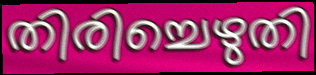
തിരിച്ചെഴുതി